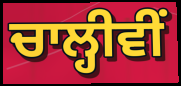
ਚਾਲ੍ਹੀਵੀਂ